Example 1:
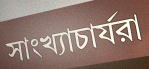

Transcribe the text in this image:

সাংখ্যাচার্যরা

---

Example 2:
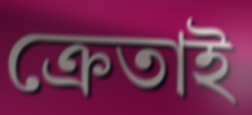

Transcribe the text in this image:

ক্রেতাই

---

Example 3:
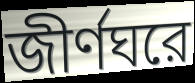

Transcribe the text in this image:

জীর্ণঘরে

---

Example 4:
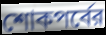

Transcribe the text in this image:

শোকপর্বের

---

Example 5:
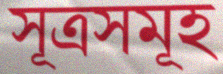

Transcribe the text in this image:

সূত্রসমূহ